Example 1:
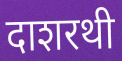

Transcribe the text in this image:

दाशरथी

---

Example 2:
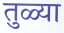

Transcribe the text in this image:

तुळ्या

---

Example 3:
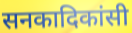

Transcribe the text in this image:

सनकादिकांसी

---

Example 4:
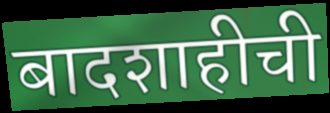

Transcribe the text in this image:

बादशाहीची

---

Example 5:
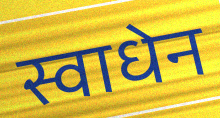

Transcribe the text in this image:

स्वाधेन